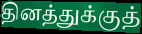
தினத்துக்குத்